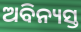
ଅବିନ୍ୟସ୍ତ